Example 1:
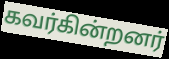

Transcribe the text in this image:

கவர்கின்றனர்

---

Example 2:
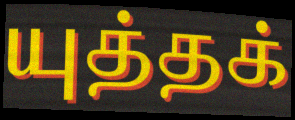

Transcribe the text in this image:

யுத்தக்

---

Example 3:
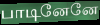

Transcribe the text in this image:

பாடினேனே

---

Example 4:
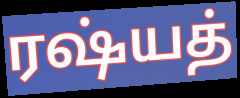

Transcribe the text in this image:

ரஷ்யத்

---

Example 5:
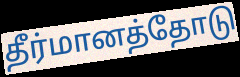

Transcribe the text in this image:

தீர்மானத்தோடு